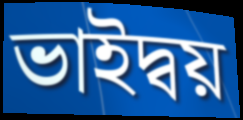
ভাইদ্বয়